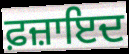
ਫ਼ਜ਼ਾਇਦ